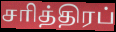
சரித்திரப்